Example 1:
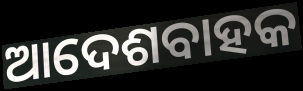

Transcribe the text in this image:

ଆଦେଶବାହକ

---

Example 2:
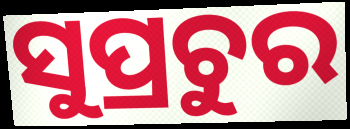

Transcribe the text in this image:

ସୁପ୍ରଚୁର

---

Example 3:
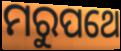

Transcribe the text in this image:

ମରୁପଥେ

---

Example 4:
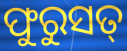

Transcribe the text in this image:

ଫୁରୁସତ୍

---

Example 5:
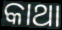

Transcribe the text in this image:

କାଥା